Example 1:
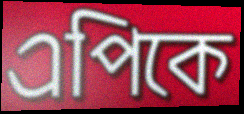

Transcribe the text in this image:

এপিকে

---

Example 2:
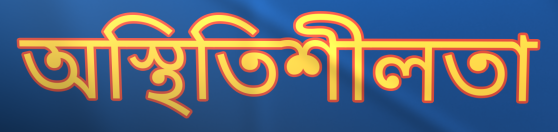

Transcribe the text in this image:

অস্থিতিশীলতা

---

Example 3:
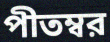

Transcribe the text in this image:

পীতম্বর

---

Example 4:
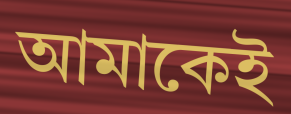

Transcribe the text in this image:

আমাকেই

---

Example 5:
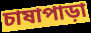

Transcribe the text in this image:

চাষাপাড়া